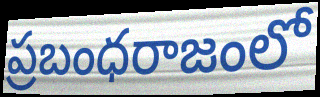
ప్రబంధరాజంలో